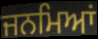
ਜਨਮਿਆਂ